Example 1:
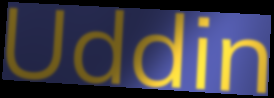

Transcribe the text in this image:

Uddin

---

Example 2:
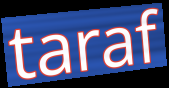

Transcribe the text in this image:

taraf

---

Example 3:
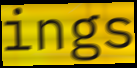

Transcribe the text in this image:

ings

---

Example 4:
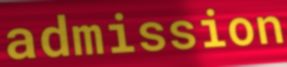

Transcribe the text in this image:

admission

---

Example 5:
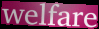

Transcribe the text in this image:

welfare